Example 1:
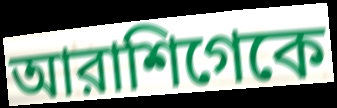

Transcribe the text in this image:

আরাশিগেকে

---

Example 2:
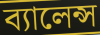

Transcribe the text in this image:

ব্যালেন্স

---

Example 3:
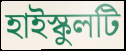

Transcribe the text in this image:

হাইস্কুলটি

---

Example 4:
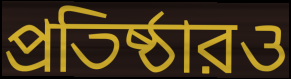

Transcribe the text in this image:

প্রতিষ্ঠারও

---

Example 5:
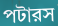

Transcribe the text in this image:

পটারস